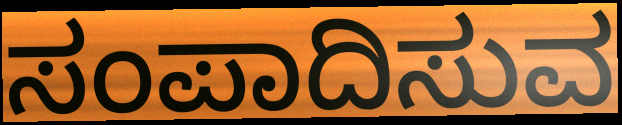
ಸಂಪಾದಿಸುವ